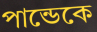
পান্ডেকে